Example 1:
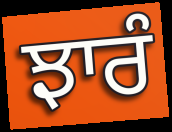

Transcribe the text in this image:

ਝਾਰੰ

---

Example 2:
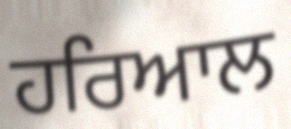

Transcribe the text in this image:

ਹਰਿਆਲ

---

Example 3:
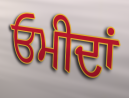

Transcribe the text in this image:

ਓਮੀਦਾਂ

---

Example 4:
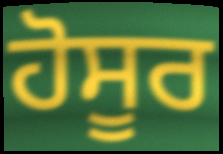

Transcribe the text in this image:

ਹੋਸੂਰ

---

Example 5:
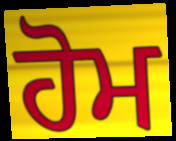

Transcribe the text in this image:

ਹੋਮ